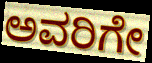
ಅವರಿಗೇ